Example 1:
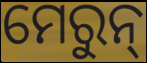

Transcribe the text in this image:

ମେରୁନ୍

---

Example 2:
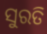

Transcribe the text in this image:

ସୁରତି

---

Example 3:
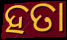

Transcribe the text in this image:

ହତା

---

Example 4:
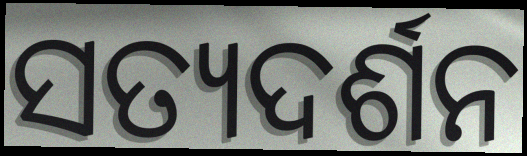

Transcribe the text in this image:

ସତ୍ୟଦର୍ଶନ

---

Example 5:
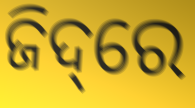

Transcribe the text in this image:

ଜିଦ୍‌ରେ